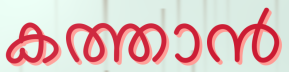
കത്താൻ